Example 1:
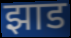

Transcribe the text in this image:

झाड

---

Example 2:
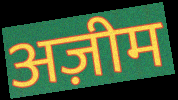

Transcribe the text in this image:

अज़ीम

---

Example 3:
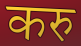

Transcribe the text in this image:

करु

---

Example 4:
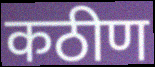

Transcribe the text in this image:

कठीण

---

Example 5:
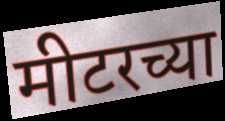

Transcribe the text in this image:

मीटरच्या